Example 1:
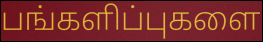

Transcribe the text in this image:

பங்களிப்புகளை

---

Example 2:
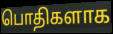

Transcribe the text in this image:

பொதிகளாக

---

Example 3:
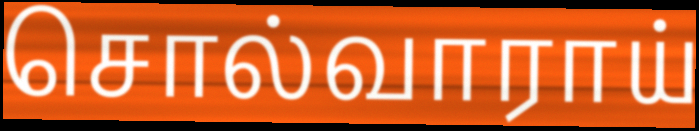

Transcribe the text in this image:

சொல்வாராய்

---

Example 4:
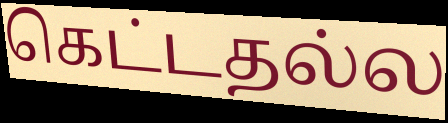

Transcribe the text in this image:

கெட்டதல்ல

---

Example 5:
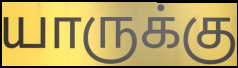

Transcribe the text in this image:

யாருக்கு